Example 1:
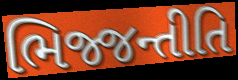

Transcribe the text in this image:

ભિજ્જન્તીતિ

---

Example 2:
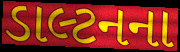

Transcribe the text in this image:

ડાલ્ટનના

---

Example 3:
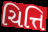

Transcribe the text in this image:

ચિત્તિ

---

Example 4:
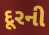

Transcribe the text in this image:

દૂરની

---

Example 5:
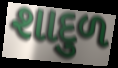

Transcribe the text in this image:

શાદુળ